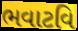
ભવાટવિ